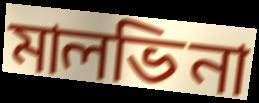
মালভিনা